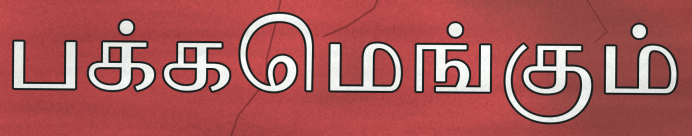
பக்கமெங்கும்